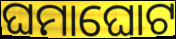
ଘମାଘୋଟ